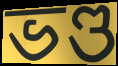
ভণ্ড